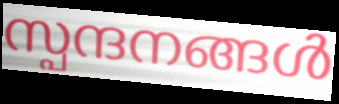
സ്പന്ദനങ്ങൾ